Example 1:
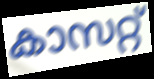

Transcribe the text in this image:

കാസറ്റ്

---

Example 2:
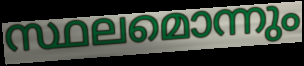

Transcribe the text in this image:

സ്ഥലമൊന്നും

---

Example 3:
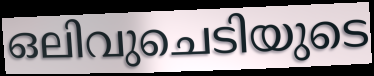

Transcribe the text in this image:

ഒലിവുചെടിയുടെ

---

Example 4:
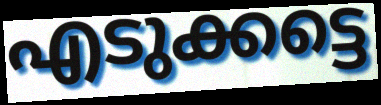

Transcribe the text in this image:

എടുക്കട്ടെ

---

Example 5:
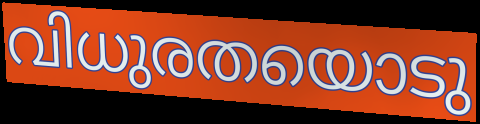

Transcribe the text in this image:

വിധുരതയൊടു